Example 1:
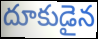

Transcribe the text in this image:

దూకుడైన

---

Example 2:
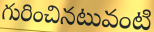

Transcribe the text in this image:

గురించినటువంటి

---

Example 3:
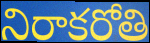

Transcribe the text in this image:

నిరాకరోతి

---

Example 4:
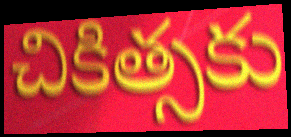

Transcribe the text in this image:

చికిత్సకు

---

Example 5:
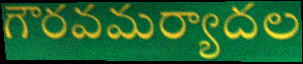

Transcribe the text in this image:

గౌరవమర్యాదల